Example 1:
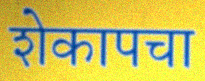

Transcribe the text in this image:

शेकापचा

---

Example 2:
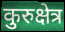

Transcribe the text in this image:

कुरुक्षेत्र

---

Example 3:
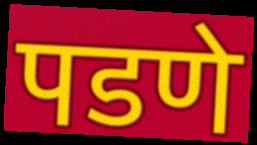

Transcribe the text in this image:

पडणे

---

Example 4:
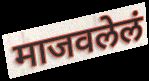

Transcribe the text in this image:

माजवलेलं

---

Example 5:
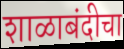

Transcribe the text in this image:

शाळाबंदीचा